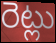
రెట్లు